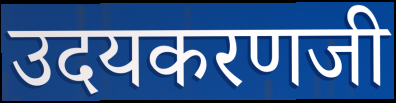
उदयकरणजी